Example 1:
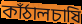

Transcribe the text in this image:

কাঁঠালচাষি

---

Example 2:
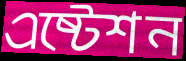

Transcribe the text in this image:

এষ্টেশন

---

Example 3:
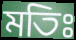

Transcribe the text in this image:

মতিঃ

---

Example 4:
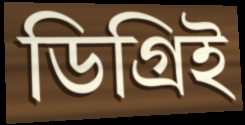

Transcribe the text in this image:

ডিগ্রিই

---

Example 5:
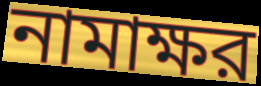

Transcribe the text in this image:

নামাক্ষর